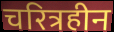
चरित्रहीन